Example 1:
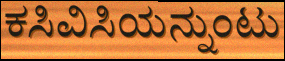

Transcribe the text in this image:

ಕಸಿವಿಸಿಯನ್ನುಂಟು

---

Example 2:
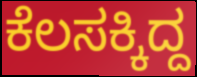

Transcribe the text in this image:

ಕೆಲಸಕ್ಕಿದ್ದ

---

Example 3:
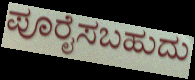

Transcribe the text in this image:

ಪೂರೈಸಬಹುದು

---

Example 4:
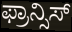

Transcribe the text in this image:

ಫ್ರಾನ್ಸಿಸ್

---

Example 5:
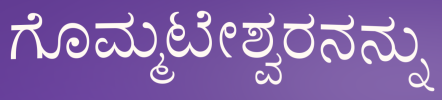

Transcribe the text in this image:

ಗೊಮ್ಮಟೇಶ್ವರನನ್ನು